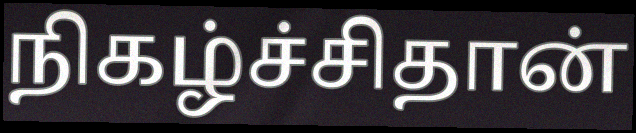
நிகழ்ச்சிதான்